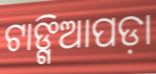
ଟାଙ୍ଗିଆପଡ଼ା